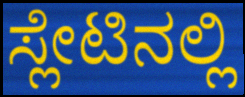
ಸ್ಲೇಟಿನಲ್ಲಿ